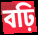
বঢ়ি